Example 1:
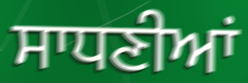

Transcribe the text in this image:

ਸਾਧਣੀਆਂ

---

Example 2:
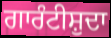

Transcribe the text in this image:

ਗਾਰੰਟੀਸ਼ੁਦਾ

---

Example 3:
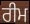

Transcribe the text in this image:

ਰੀਮ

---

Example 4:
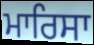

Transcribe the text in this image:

ਮਾਰਿਸਾ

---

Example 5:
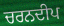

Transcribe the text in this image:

ਚਰਨਦੀਪ